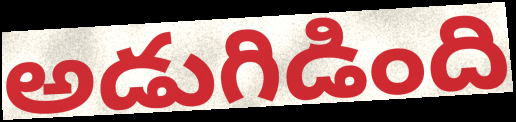
అడుగిడింది